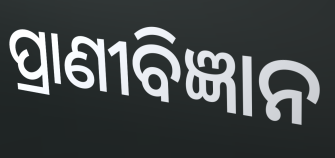
ପ୍ରାଣୀବିଜ୍ଞାନ